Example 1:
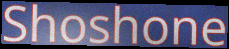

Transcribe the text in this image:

Shoshone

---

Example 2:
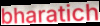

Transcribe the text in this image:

bharatich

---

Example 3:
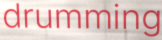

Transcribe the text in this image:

drumming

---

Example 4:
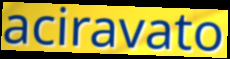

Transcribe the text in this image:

aciravato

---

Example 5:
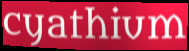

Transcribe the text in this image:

cyathium